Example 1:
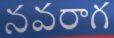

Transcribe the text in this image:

నవరాగ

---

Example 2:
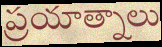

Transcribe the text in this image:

ప్రయాత్నాలు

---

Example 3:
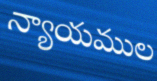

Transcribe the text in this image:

న్యాయముల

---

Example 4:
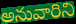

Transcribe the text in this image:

అనువారిని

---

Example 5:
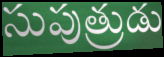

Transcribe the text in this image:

సుపుత్రుడు